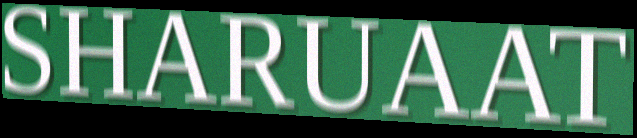
SHARUAAT